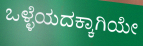
ಒಳ್ಳೆಯದಕ್ಕಾಗಿಯೇ